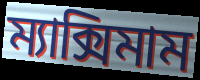
ম্যাক্সিমাম